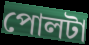
পোলটা